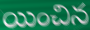
యించిన